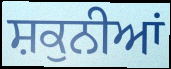
ਸ਼ਕੁਨੀਆਂ